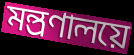
মন্ত্রণালয়ে